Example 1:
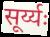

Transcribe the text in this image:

सूर्य्यः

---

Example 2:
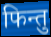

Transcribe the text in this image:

फिन्तु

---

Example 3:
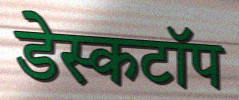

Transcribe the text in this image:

डेस्‍कटॉप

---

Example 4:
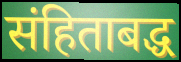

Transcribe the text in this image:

संहिताबद्ध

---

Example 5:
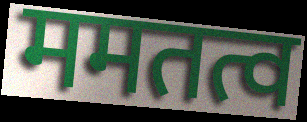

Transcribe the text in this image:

ममतत्व